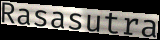
Rasasutra